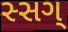
સ્સગ્